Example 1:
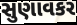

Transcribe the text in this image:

સુણાવકર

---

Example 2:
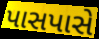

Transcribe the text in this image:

પાસપાસે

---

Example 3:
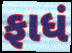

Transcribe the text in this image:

ફાધં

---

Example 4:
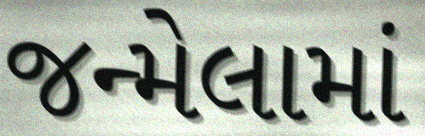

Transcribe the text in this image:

જન્મેલામાં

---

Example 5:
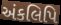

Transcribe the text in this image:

અંકલિપિ